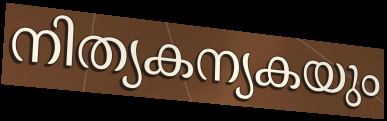
നിത്യകന്യകയും